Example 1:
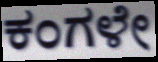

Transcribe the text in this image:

ಕಂಗಳೇ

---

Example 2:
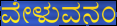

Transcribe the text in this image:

ವೇಳುವನಂ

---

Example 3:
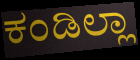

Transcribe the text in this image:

ಕಂಡಿಲ್ಲಾ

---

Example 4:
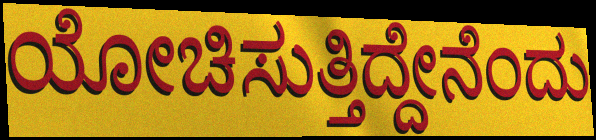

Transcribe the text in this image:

ಯೋಚಿಸುತ್ತಿದ್ದೇನೆಂದು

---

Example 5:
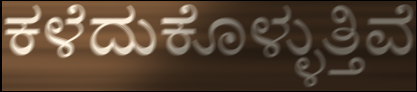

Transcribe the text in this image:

ಕಳೆದುಕೊಳ್ಳುತ್ತಿವೆ